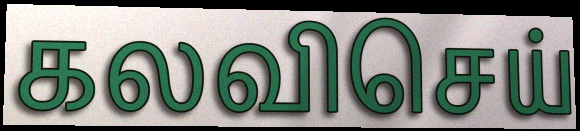
கலவிசெய்